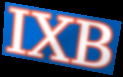
IXB